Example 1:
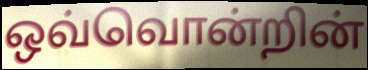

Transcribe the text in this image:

ஒவ்வொன்றின்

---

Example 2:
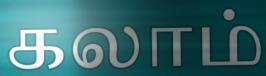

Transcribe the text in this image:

கலாம்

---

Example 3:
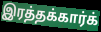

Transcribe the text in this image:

இரத்தக்கார்க்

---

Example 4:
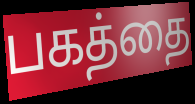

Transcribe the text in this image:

பகத்தை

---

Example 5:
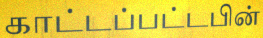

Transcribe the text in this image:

காட்டப்பட்டபின்